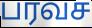
பரவச